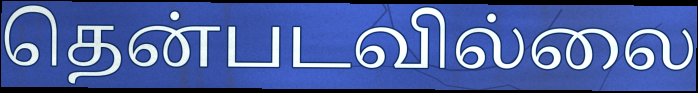
தென்படவில்லை